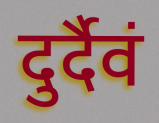
दुर्दैवं